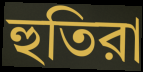
হুতিরা